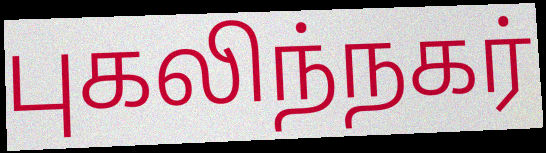
புகலிந்நகர்